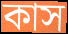
কাস